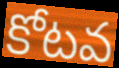
కోటవ